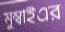
মুম্বাইএর